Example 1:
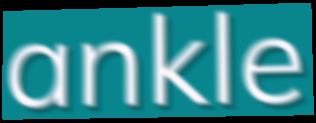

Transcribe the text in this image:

ankle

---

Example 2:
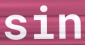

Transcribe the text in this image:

sin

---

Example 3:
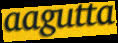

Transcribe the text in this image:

aagutta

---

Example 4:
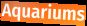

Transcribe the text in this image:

Aquariums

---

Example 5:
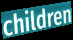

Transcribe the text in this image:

children